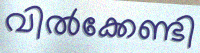
വിൽക്കേണ്ടി